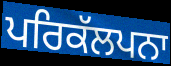
ਪਰਿਕੱਲਪਨਾ